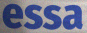
essa